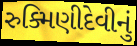
રુક્મિણીદેવીનું